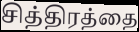
சித்திரத்தை